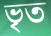
ভৃত